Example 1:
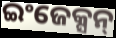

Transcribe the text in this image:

ଇଂଜେକ୍ସନ୍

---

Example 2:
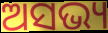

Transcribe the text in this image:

ଅସଭ୍ୟ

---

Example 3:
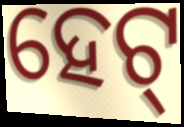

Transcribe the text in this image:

ହେଟ୍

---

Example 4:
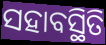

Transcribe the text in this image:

ସହାବସ୍ଥିତି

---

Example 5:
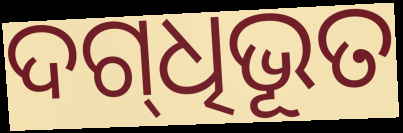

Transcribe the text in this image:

ଦଗ୍‌ଧିଭୂତ